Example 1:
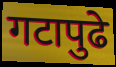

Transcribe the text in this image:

गटापुढे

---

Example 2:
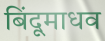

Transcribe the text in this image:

बिंदूमाधव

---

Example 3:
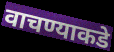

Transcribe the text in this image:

वाचण्याकडे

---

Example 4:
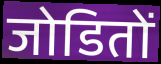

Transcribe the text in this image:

जोडितों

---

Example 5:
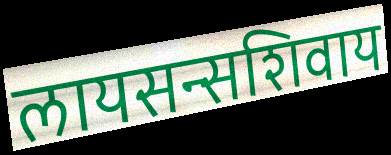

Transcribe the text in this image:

लायसन्सशिवाय